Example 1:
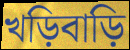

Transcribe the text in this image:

খড়িবাড়ি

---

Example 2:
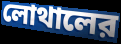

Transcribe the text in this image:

লোথালের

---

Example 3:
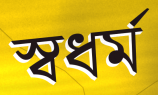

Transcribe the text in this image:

স্বধর্ম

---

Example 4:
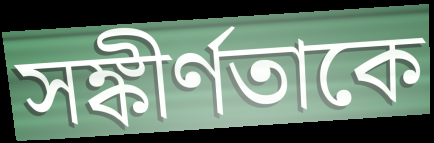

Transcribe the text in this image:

সঙ্কীর্ণতাকে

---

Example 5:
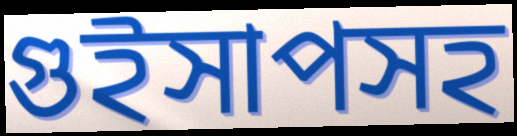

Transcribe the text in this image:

গুইসাপসহ